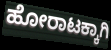
ಹೋರಾಟಕ್ಕಾಗಿ